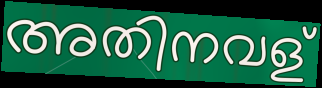
അതിനവള്